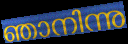
ഞാനിന്നു